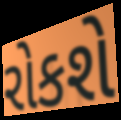
રોકશે